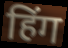
हिंग